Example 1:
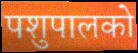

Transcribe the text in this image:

पशुपालको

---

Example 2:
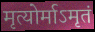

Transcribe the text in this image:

मृत्योर्माऽमृतं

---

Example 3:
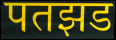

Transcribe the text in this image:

पतझड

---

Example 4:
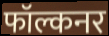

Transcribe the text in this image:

फॉल्कनर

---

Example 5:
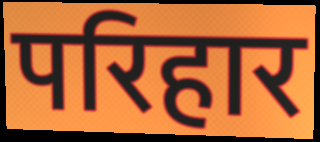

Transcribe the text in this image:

परिहार